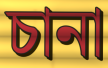
চানা